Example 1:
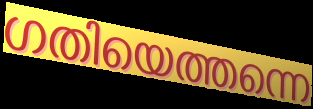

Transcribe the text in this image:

ഗതിയെത്തന്നെ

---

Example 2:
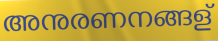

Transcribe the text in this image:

അനുരണനങ്ങള്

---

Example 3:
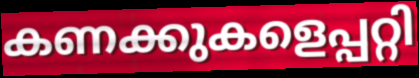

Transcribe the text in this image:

കണക്കുകളെപ്പറ്റി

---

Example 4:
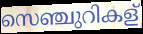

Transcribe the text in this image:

സെഞ്ചുറികള്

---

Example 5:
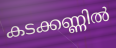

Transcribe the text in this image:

കടക്കണ്ണിൽ